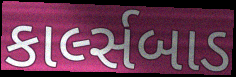
કાર્લ્સબાડ